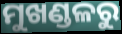
ମୁଖଣ୍ଡଳରୁ